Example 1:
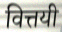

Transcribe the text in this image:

वित्तयी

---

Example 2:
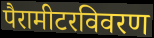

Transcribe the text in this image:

पैरामीटरविवरण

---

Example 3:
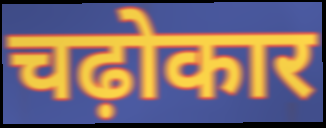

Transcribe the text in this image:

चढ़ोकार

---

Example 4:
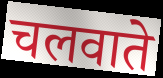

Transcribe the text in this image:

चलवाते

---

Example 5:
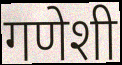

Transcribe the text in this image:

गणेशी